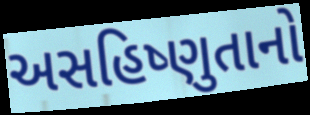
અસહિષ્ણુતાનો